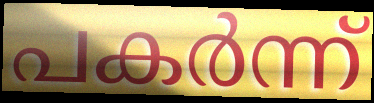
പകർന്ന്